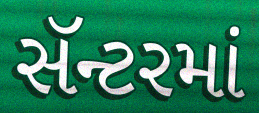
સૅન્ટરમાં